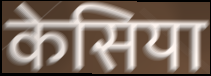
केसिया